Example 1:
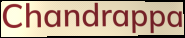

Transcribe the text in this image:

Chandrappa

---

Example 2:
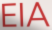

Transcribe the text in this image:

EIA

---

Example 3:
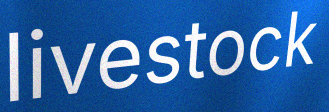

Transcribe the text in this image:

livestock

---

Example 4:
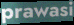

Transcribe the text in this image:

prawasi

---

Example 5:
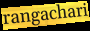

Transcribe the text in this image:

rangachari